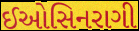
ઈઓસિનરાગી